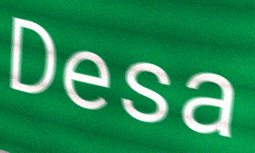
Desa